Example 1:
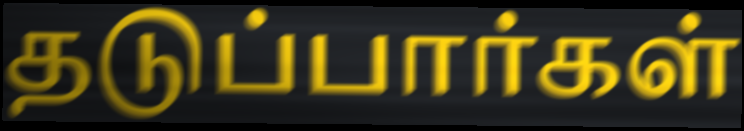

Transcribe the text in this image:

தடுப்பார்கள்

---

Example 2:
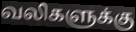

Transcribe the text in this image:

வலிகளுக்கு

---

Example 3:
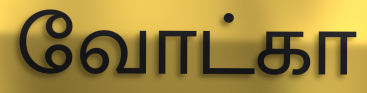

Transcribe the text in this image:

வோட்கா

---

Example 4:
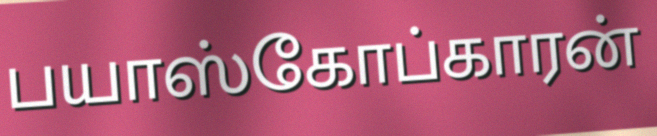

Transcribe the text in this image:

பயாஸ்கோப்காரன்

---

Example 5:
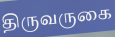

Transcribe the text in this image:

திருவருகை